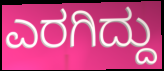
ಎರಗಿದ್ದು